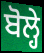
ਬੋਲ੍ਹੇ